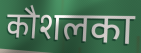
कौशलका